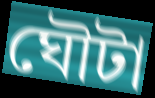
ঘৌটা